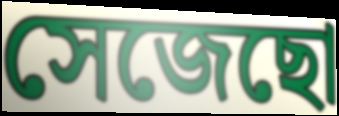
সেজেছো